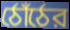
ঠোঁঠের